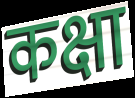
कक्षा